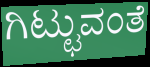
ಗಿಟ್ಟುವಂತೆ